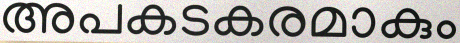
അപകടകരമാകും